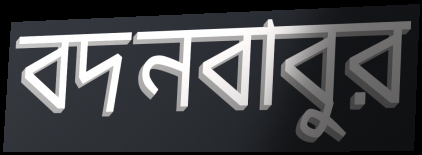
বদনবাবুর